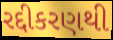
રદ્દીકરણથી